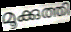
മൂക്കുത്തി